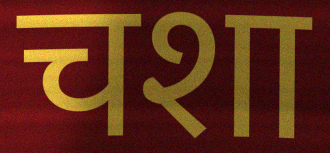
चशा